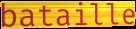
bataille